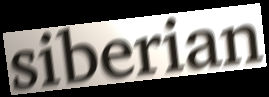
siberian